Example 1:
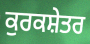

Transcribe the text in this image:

ਕੁਰਕਸ਼ੇਤਰ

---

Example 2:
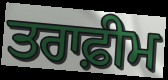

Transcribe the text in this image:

ਤਰਾਫ਼ੀਮ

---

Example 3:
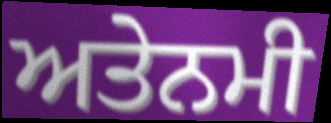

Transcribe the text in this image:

ਅਤੇਨਮੀ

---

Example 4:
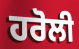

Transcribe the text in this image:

ਹਰੋਲੀ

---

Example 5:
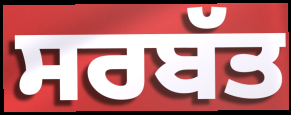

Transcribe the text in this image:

ਸਰਬੱਤ